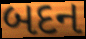
બદન